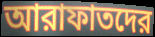
আরাফাতদের